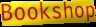
Bookshop